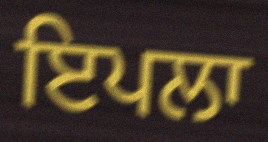
ਇਪਲਾ